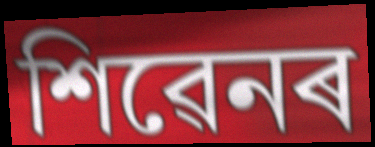
শিৱেনৰ